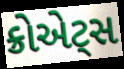
ક્રોએટ્સ